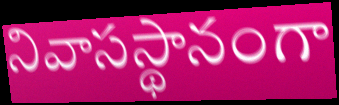
నివాసస్థానంగా